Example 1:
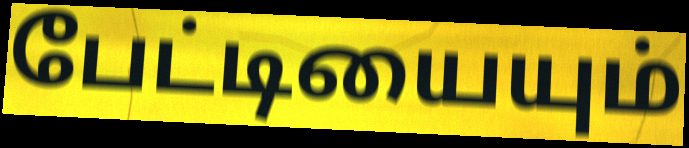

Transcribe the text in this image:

பேட்டியையும்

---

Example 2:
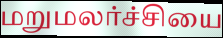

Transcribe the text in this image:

மறுமலர்ச்சியை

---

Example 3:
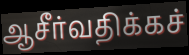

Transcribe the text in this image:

ஆசீர்வதிக்கச்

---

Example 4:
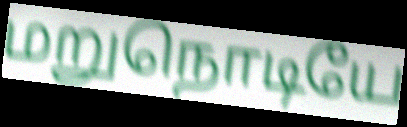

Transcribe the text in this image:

மறுநொடியே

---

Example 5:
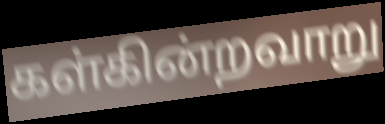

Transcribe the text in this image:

கள்கின்றவாறு